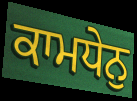
ਕਾਮਧੇਨੁ